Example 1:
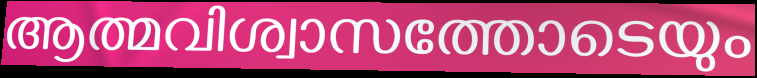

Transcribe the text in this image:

ആത്മവിശ്വാസത്തോടെയും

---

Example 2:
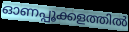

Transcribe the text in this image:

ഓണപ്പൂക്കളത്തിൽ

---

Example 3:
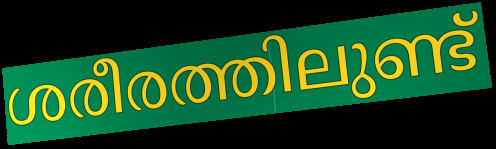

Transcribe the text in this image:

ശരീരത്തിലുണ്ട്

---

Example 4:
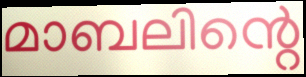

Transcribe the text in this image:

മാബലിന്റെ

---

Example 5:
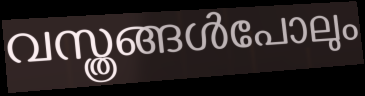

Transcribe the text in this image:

വസ്ത്രങ്ങൾപോലും